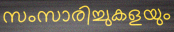
സംസാരിച്ചുകളയും